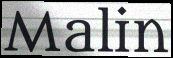
Malin